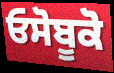
ਓਸੋਬੂਕੋ